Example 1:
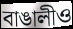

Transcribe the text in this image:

বাঙালীও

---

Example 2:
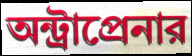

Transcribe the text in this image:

অন্ট্রাপ্রেনার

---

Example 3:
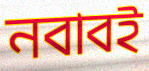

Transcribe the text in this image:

নবাবই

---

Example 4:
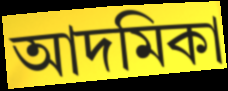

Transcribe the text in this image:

আদমিকা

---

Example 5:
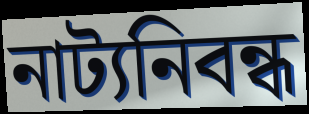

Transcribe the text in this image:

নাট্যনিবন্ধ